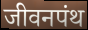
जीवनपंथ